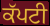
ਕੱਪਟੀ